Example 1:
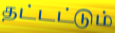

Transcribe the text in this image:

தட்டட்டும்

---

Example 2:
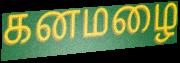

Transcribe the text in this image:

கனமழை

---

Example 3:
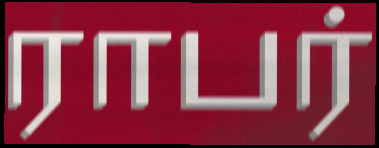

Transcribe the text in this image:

ராபர்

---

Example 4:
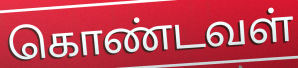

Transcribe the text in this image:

கொண்டவள்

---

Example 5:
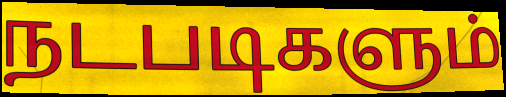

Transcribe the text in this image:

நடபடிகளும்